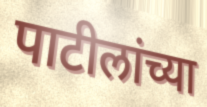
पाटीलांच्या